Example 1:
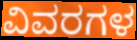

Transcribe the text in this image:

ವಿವರಗಳ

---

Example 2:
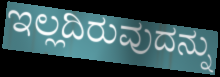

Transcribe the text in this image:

ಇಲ್ಲದಿರುವುದನ್ನು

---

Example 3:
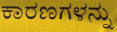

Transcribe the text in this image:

ಕಾರಣಗಳನ್ನು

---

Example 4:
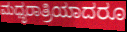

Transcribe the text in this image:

ಮಧ್ಯರಾತ್ರಿಯಾದರೂ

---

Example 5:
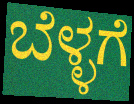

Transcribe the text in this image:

ಬೆಳ್ಳಗೆ